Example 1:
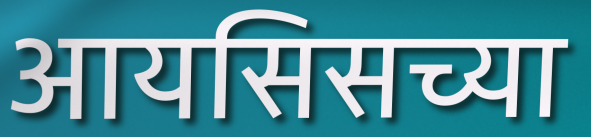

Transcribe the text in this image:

आयसिसच्या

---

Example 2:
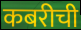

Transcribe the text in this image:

कबरीची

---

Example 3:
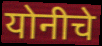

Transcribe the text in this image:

योनीचे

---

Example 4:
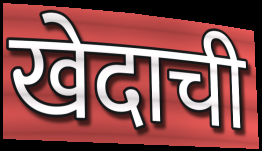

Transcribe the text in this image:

खेदाची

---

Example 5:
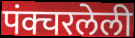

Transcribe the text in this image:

पंक्चरलेली